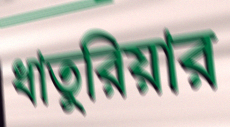
ধাতুরিয়ার